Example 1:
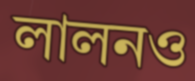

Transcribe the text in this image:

লালনও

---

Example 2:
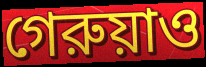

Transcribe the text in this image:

গেরুয়াও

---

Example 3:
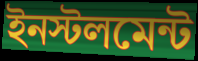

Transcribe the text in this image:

ইনস্টলমেন্ট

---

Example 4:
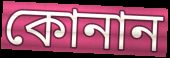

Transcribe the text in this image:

কোনান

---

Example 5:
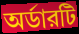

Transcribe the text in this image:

অর্ডারটি